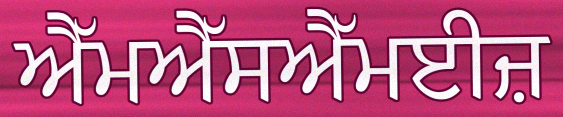
ਐੱਮਐੱਸਐੱਮਈਜ਼